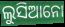
ଲୁସିଆନୋ